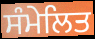
ਸੰਮੇਲਿਤ